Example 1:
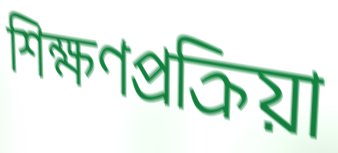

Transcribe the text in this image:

শিক্ষণপ্রক্রিয়া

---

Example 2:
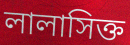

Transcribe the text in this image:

লালাসিক্ত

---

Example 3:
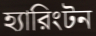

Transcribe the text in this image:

হ্যারিংটন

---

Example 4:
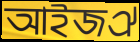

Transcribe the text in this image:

আইজঐ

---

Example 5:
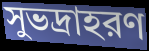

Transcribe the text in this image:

সুভদ্রাহরণ